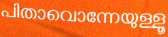
പിതാവൊന്നേയുള്ളൂ